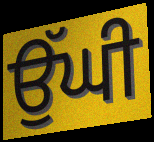
ਉੱਘੀ